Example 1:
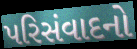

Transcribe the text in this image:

પરિસંવાદનો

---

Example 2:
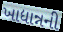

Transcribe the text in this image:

ખાદ્યાન્નની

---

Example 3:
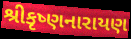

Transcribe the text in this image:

શ્રીકૃષ્ણનારાયણ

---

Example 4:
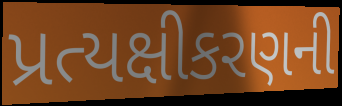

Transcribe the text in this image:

પ્રત્યક્ષીકરણની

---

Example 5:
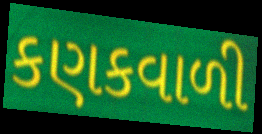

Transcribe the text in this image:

કણકવાળી